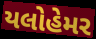
યલોહેમર